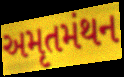
અમૃતમંથન